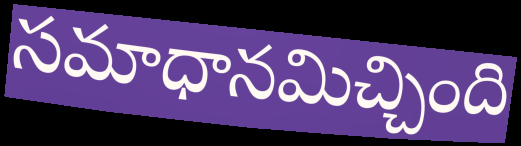
సమాధానమిచ్చింది